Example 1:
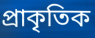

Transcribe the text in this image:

প্ৰাকৃতিক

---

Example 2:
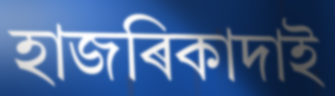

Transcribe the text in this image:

হাজৰিকাদাই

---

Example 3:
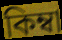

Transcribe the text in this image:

কিম্বা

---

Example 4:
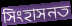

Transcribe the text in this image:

সিংহাসনত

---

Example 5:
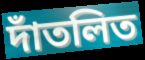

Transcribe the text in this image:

দাঁতলিত